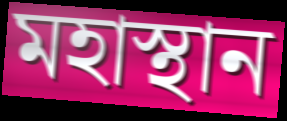
মহাস্থান